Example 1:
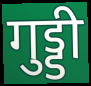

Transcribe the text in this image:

गुड्डी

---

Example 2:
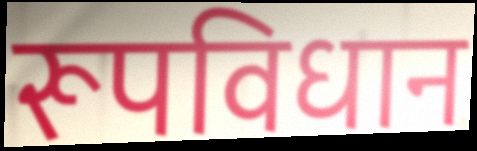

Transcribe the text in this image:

रूपविधान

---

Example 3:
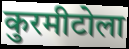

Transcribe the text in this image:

कुरमीटोला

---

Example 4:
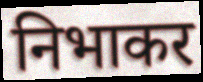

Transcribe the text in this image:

निभाकर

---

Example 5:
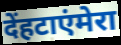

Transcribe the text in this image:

देंहटाएंमेरा